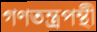
গণতন্ত্রপন্থী